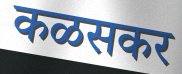
कळसकर